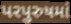
પરપુરુષમાં